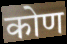
कोण